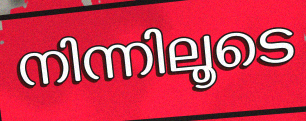
നിന്നിലൂടെ